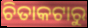
ଚିତାକଟାରୁ